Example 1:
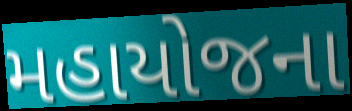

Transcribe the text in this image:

મહાયોજના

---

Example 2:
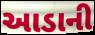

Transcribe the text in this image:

આડાની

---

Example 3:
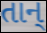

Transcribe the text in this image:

તાન્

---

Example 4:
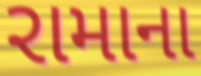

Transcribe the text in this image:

રામાના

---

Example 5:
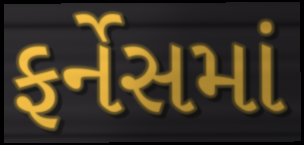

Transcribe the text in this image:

ફર્નેસમાં